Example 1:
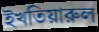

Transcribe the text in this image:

ইখতিয়ারুল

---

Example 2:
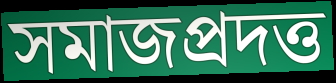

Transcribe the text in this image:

সমাজপ্রদত্ত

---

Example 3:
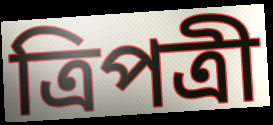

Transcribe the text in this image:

ত্রিপত্রী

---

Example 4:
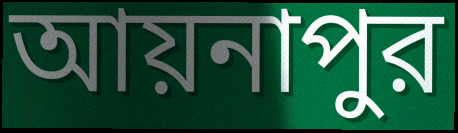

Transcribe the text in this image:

আয়নাপুর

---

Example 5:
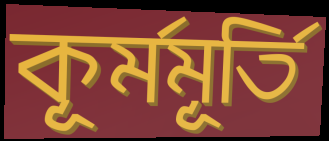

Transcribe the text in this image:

কূর্মমূর্তি